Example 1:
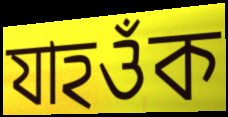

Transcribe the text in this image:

যাহওঁক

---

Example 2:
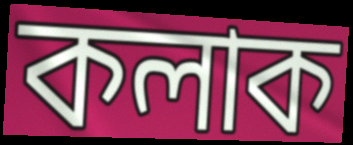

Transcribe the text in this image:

কলাক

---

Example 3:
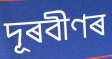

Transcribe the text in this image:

দূৰবীণৰ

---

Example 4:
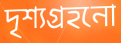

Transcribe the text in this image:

দৃশ্যগ্ৰহনো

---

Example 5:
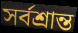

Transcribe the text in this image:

সৰ্বশ্ৰান্ত